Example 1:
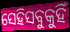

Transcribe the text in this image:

ସେହିସବୁକୁହିଁ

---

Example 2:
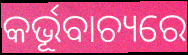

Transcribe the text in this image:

କର୍ଭୂବାଚ୍ୟରେ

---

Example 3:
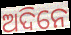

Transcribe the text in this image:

ଅଦିନେ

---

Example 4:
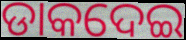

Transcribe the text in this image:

ଡାକଦେଇ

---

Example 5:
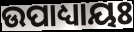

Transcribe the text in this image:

ଉପାଧ୍ୟାୟଃ